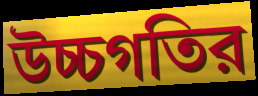
উচ্চগতির